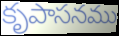
కృపాసనము